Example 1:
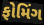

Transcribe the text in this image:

ફોમિંગ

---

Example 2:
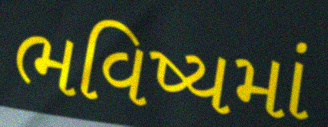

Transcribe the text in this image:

ભવિષ્યમાં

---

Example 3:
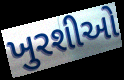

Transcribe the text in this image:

ખુરશીઓ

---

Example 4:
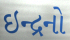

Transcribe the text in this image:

ઇન્દ્રનો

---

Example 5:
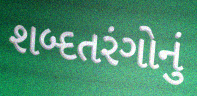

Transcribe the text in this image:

શબ્દતરંગોનું